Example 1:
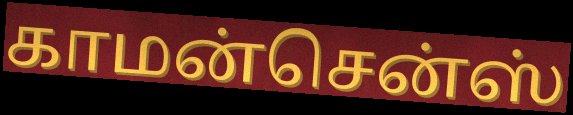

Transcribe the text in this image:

காமன்சென்ஸ்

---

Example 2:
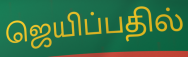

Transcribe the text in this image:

ஜெயிப்பதில்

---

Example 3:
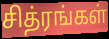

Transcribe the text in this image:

சித்ரங்கள்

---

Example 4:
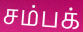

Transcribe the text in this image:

சம்பக்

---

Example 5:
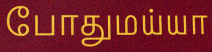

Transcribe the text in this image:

போதுமய்யா